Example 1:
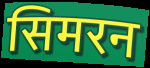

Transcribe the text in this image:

सिमरन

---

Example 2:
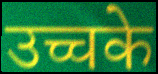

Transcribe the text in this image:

उच्चके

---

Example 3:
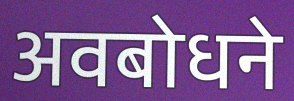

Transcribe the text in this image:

अवबोधने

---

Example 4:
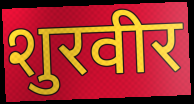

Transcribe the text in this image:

शुरवीर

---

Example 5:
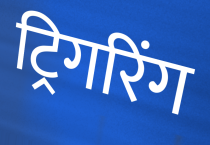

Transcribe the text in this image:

ट्रिगरिंग